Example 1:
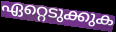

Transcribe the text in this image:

ഏറ്റെടുക്കുക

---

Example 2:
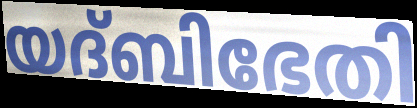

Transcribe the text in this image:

യദ്ബിഭേതി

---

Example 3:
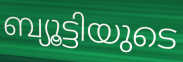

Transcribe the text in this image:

ബ്യൂട്ടിയുടെ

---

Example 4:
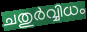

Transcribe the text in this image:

ചതുർവ്വിധം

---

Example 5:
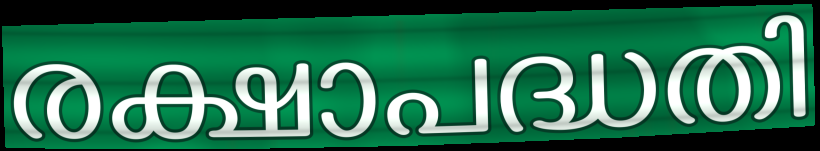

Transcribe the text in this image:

രക്ഷാപദ്ധതി